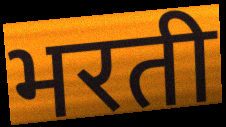
भरती